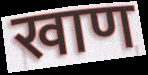
खाण